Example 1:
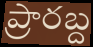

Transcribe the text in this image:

ప్రారబ్ద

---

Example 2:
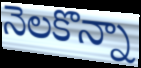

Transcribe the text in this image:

నెలకొన్నా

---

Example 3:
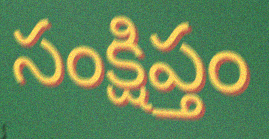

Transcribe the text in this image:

సంక్షిప్తం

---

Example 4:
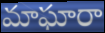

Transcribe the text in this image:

మాఘారా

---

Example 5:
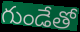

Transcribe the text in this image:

గుండేతో